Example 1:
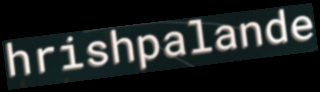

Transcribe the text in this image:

hrishpalande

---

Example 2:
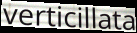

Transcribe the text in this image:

verticillata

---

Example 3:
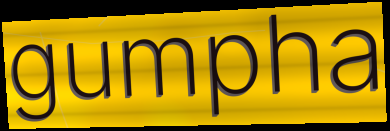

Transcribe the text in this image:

gumpha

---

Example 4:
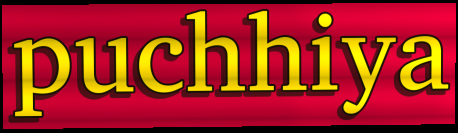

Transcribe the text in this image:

puchhiya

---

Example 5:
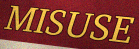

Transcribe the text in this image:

MISUSE